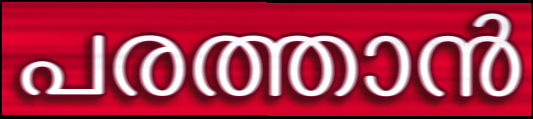
പരത്താൻ